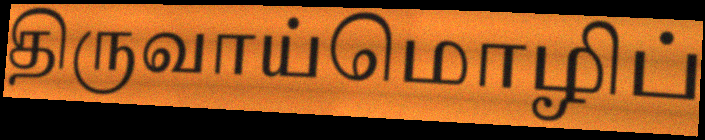
திருவாய்மொழிப்